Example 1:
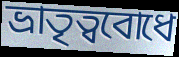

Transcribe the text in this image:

ভ্রাতৃত্ববোধে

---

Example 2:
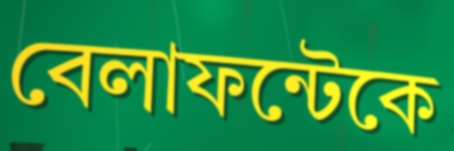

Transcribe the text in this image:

বেলাফন্টেকে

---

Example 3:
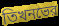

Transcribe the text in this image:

তিখনভের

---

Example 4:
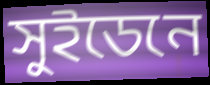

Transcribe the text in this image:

সুইডেনে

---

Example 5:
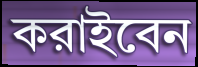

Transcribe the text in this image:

করাইবেন